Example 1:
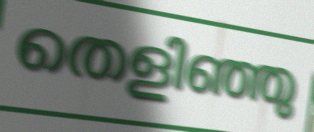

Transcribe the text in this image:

തെളിഞ്ഞു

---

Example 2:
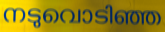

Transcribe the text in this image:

നടുവൊടിഞ്ഞ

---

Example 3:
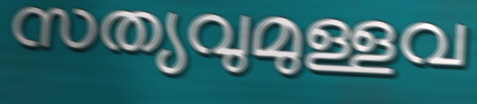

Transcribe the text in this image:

സത്യവുമുള്ളവ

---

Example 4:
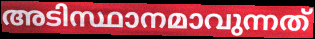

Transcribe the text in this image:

അടിസ്ഥാനമാവുന്നത്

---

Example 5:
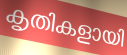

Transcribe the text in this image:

കൃതികളായി